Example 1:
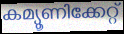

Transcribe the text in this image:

കമ്യൂണിക്കേറ്റ്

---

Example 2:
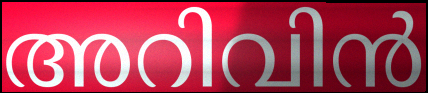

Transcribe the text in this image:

അറിവിൻ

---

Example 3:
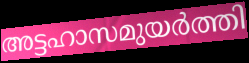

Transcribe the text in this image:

അട്ടഹാസമുയർത്തി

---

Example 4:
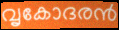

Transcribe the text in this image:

വൃകോദരൻ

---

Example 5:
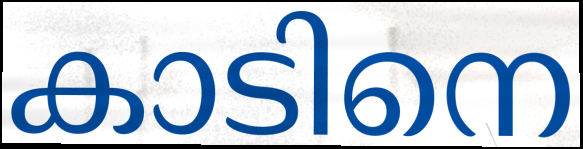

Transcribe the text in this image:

കാടിനെ